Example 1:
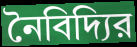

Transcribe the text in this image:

নৈবিদ্যির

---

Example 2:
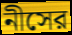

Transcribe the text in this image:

নীসের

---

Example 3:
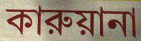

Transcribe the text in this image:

কারুয়ানা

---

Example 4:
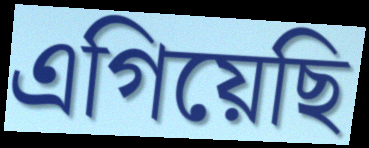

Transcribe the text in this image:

এগিয়েছি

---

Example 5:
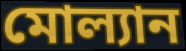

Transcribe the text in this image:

মোল্যান